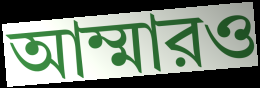
আম্মারও